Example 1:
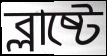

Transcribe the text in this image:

ব্লাষ্টে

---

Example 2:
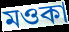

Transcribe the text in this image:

মওকা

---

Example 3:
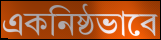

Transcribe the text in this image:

একনিষ্ঠভাবে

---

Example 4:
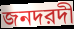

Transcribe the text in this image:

জনদরদী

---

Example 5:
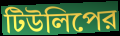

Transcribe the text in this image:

টিউলিপের